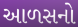
આળસનો